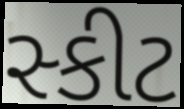
સ્કીટ